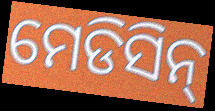
ମେଡିସିନ୍